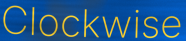
Clockwise